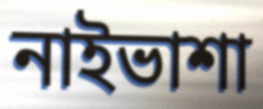
নাইভাশা